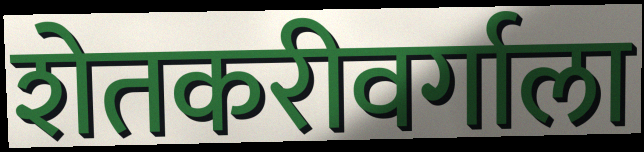
शेतकरीवर्गाला